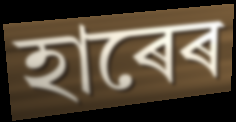
হাৰেৰ